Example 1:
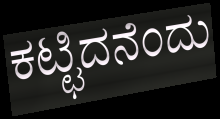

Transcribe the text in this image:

ಕಟ್ಟಿದನೆಂದು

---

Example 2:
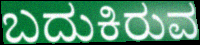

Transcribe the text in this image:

ಬದುಕಿರುವ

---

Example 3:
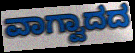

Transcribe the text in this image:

ವಾಗ್ವಾದದ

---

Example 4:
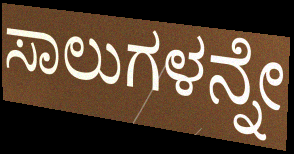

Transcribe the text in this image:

ಸಾಲುಗಳನ್ನೇ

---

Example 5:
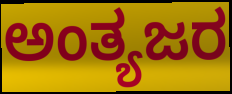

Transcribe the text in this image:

ಅಂತ್ಯಜರ